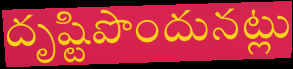
దృష్టిపొందునట్లు